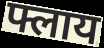
फ्लाय